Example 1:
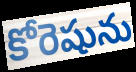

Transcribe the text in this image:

కోరెషును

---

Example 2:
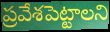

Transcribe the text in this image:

ప్రవేశపెట్టాలని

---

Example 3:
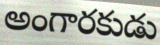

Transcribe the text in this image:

అంగారకుడు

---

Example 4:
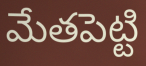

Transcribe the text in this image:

మేతపెట్టి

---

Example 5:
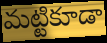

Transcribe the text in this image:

మట్టికూడా